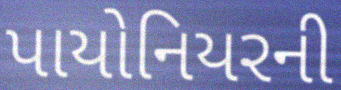
પાયોનિયરની